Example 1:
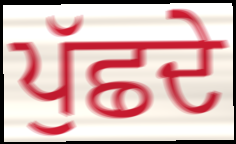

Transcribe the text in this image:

ਪੁੱਛਦੇ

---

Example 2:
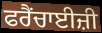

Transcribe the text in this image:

ਫਰੈਂਚਾਈਜ਼ੀ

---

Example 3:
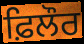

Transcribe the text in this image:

ਫ਼ਿਲੌਰ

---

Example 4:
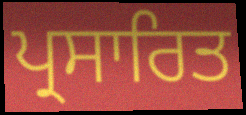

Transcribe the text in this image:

ਪ੍ਰਸਾਰਿਤ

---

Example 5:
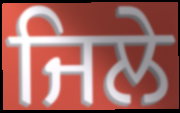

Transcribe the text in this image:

ਜਿਲੇ